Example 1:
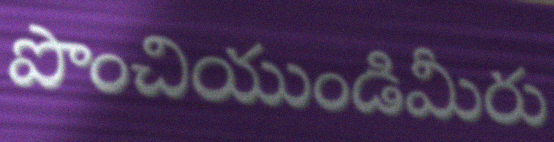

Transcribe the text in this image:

పొంచియుండిమీరు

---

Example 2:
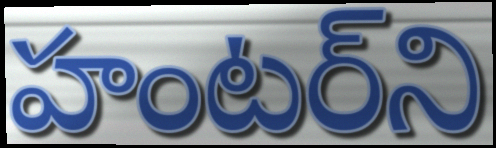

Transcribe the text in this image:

హంటర్‌ని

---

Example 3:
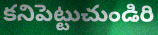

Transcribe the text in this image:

కనిపెట్టుచుండిరి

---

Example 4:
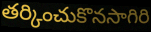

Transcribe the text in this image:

తర్కించుకొనసాగిరి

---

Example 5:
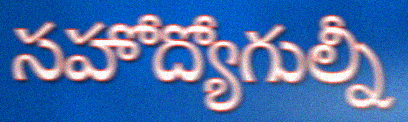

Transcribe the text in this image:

సహోద్యోగుల్నీ